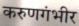
करुणगंभीर